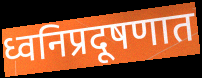
ध्वनिप्रदूषणात